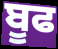
ਬੂਫ